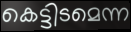
കെട്ടിടമെന്ന